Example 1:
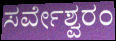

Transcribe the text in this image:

ಸರ್ವೇಶ್ವರಂ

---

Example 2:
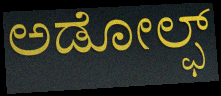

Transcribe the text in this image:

ಅಡೋಲ್ಫ್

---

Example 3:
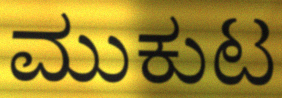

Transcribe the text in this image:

ಮುಕುಟ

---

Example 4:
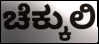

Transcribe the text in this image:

ಚೆಕ್ಕುಲಿ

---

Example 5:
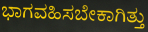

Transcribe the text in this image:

ಭಾಗವಹಿಸಬೇಕಾಗಿತ್ತು